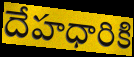
దేహధారికి